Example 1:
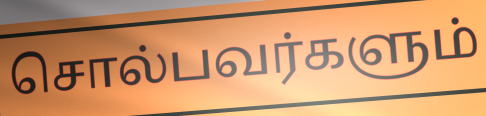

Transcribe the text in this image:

சொல்பவர்களும்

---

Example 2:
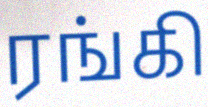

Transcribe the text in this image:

ரங்கி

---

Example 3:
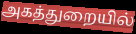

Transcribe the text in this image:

அகத்துறையில்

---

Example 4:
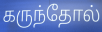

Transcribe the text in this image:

கருந்தோல்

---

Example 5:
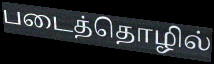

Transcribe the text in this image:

படைத்தொழில்